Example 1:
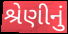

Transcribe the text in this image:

શ્રેણીનું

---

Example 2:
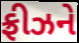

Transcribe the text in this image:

ફ્રીઝને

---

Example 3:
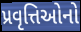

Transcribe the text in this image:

પ્રવૃત્તિઓનો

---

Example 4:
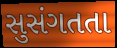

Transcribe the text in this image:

સુસંગતતા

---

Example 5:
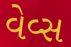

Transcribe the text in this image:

વેવ્સ